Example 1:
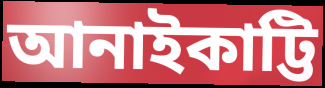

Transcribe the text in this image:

আনাইকাট্টি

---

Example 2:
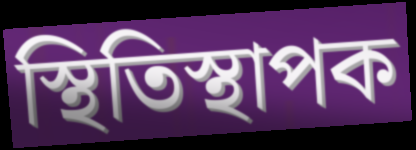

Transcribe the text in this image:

স্থিতিস্থাপক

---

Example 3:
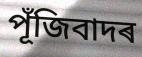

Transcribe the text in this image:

পূঁজিবাদৰ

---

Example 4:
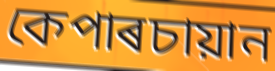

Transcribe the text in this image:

কেপাৰচায়ান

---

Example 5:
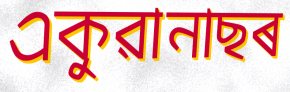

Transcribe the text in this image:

একুৱানাছৰ